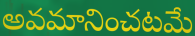
అవమానించటమే